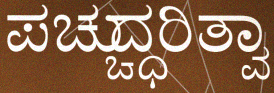
ಪಚ್ಚುದ್ಧರಿತ್ವಾ